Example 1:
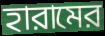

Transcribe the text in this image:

হারামের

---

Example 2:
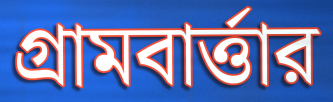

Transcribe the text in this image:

গ্রামবার্ত্তার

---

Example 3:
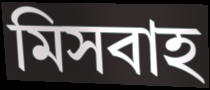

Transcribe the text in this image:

মিসবাহ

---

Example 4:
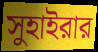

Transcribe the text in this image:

সুহাইরার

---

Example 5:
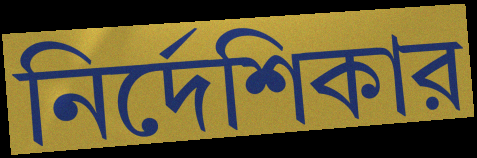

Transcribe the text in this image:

নির্দেশিকার